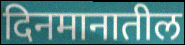
दिनमानातील